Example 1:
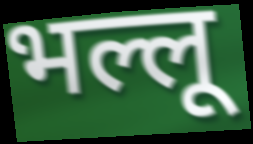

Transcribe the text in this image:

भल्लू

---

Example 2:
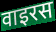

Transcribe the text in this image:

वाइरस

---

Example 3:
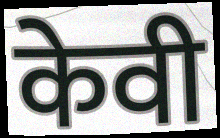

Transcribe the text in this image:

केवी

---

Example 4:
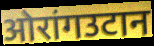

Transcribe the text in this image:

ओरांगउटान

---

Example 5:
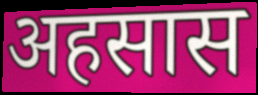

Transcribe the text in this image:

अहसास